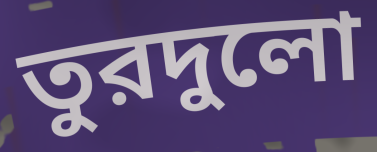
তুরদুলো